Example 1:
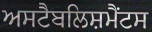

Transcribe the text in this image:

ਅਸਟੈਬਲਿਸ਼ਮੈਂਟਸ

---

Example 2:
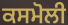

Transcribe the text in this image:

ਕਸਮੋਲੀ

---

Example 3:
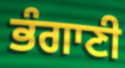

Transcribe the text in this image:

ਭੰਗਾਣੀ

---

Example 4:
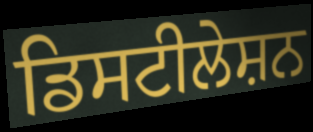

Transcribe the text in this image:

ਡਿਸਟੀਲੇਸ਼ਨ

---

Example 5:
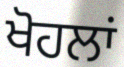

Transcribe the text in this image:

ਖੋਹਲਾਂ